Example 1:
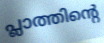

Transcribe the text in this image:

പ്ലാത്തിന്റെ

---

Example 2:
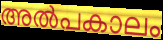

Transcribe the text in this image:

അൽപകാലം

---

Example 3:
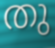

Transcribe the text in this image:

തു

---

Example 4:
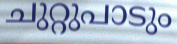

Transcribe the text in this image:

ചുറ്റുപാടും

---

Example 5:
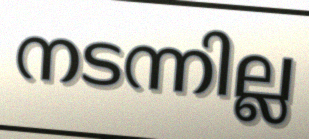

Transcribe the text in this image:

നടന്നില്ല